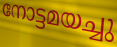
നോട്ടമയച്ചു